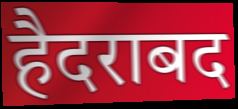
हैदराबद